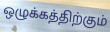
ஒழுக்கத்திற்கும்